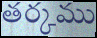
తర్కము